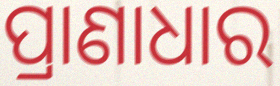
ପ୍ରାଣାଧାର